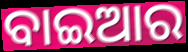
ବାଇଆର